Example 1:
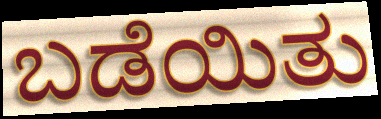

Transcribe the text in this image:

ಬಡೆಯಿತು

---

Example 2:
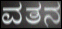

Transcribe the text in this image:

ವತನ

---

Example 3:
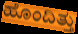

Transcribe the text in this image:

ಹೊಂದಿತ್ತು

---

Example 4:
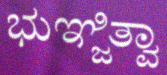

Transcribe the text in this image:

ಭುಞ್ಜಿತ್ವಾ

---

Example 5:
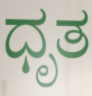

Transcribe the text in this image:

ಧೃತ